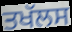
ਤਖੱਲਸ